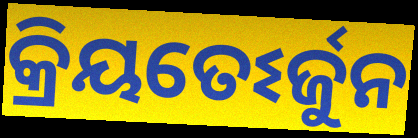
କ୍ରିୟତେଽର୍ଜୁନ